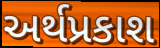
અર્થપ્રકાશ